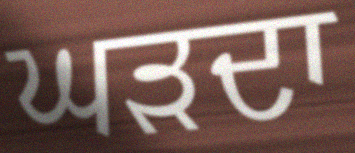
ਘੜਦਾ